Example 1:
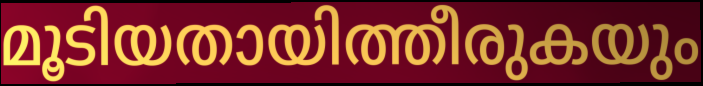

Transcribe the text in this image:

മൂടിയതായിത്തീരുകയും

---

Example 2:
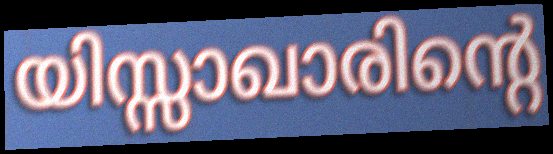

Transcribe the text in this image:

യിസ്സാഖാരിന്റെ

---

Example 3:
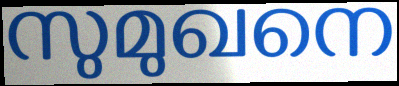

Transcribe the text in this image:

സുമുഖനെ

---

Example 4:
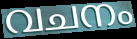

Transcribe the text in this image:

വചനം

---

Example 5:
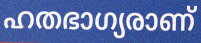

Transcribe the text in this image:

ഹതഭാഗ്യരാണ്